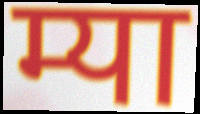
म्या